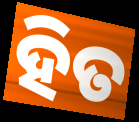
ହିତ